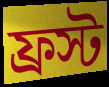
ফ্রস্ট